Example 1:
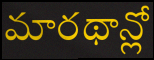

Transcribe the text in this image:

మారథాన్లో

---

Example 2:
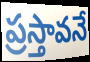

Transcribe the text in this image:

ప్రస్తావనే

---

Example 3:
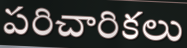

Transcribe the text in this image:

పరిచారికలు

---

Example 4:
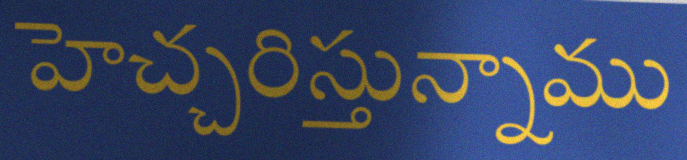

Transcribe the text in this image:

హెచ్చరిస్తున్నాము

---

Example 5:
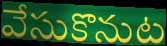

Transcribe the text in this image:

వేసుకొనుట